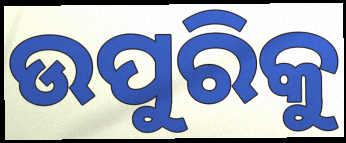
ଉପୁରିକୁ